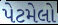
પેટમેલો